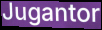
Jugantor